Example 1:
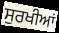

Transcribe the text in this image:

ਸੁਰਖੀਆਂ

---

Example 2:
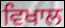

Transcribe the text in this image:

ਵਿਖਾਲ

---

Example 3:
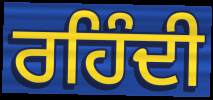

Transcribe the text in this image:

ਰਹਿੰਦੀ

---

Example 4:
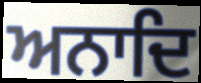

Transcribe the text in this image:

ਅਨਾਦਿ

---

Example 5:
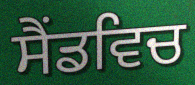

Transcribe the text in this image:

ਸੈਂਡਵਿਚ